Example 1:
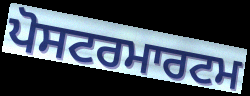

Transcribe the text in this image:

ਪੋਸਟਰਮਾਰਟਮ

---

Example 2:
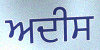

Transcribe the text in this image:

ਅਦੀਸ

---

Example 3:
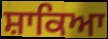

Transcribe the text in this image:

ਸ਼ਾਕਿਆ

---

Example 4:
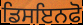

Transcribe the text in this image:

ਡਿਸਇਨਫੋ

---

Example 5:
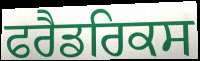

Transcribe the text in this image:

ਫਰੈਡਰਿਕਸ